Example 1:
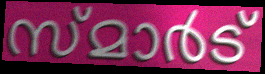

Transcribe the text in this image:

സ്മാർട്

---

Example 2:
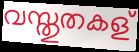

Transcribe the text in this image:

വസ്തുതകള്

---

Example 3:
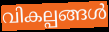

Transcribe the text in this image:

വികല്പങ്ങൾ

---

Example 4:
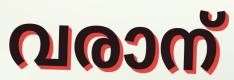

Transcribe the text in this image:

വരാന്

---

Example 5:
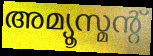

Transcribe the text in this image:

അമ്യൂസ്മന്റ്